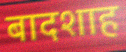
बादशाह